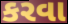
કરવા